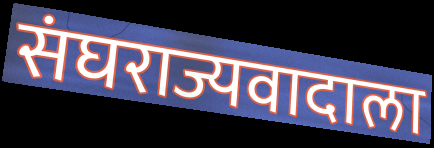
संघराज्यवादाला